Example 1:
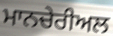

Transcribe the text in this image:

ਮਾਨਚੇਰੀਅਲ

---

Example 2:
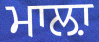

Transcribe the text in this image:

ਮਾਲ਼ਾ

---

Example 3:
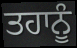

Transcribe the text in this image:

ਤਹਾਨੂੰ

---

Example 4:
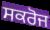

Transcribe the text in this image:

ਸਕਰੋਜ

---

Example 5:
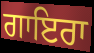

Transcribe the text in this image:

ਗਾਇਰਾ